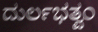
ದುರ್ಲಭತ್ವಂ